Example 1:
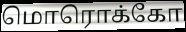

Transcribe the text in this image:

மொரொக்கோ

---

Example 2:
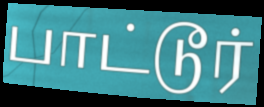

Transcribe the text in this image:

பாட்டூர்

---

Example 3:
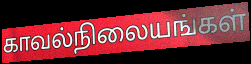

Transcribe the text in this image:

காவல்நிலையங்கள்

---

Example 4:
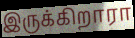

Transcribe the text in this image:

இருக்கிறாரா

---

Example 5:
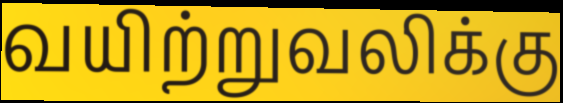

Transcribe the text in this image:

வயிற்றுவலிக்கு